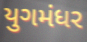
યુગમંધર